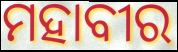
ମହାବୀର